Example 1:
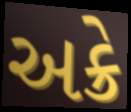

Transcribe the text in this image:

અક્રે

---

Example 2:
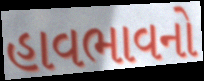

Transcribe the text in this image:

હાવભાવનો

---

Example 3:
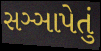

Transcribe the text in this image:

સઞ્ઞાપેતું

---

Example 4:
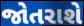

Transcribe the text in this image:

જોતરાશે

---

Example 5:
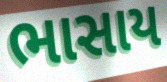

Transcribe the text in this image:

ભાસાય